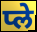
प्ले